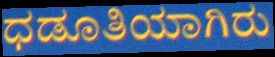
ಧಡೂತಿಯಾಗಿರು